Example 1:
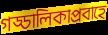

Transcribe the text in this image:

গড্ডালিকাপ্রবাহে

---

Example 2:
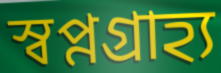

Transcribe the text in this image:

স্বপ্নগ্রাহ্য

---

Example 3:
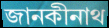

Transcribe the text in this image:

জানকীনাথ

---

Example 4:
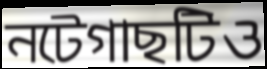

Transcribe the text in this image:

নটেগাছটিও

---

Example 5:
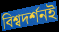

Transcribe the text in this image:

বিশ্বদর্শনই